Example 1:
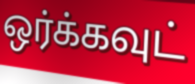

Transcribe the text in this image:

ஒர்க்கவுட்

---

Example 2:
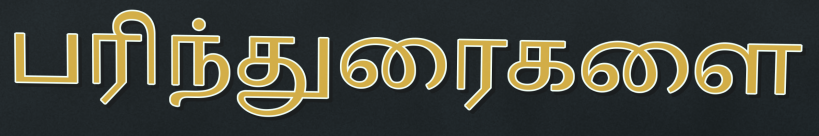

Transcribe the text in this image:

பரிந்துரைகளை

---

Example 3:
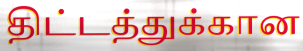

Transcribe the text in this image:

திட்டத்துக்கான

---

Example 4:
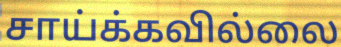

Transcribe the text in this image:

சாய்க்கவில்லை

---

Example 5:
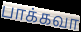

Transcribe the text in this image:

பாக்கவா